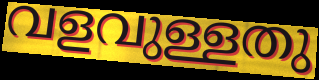
വളവുള്ളതു